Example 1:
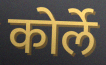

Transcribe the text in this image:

कोर्ले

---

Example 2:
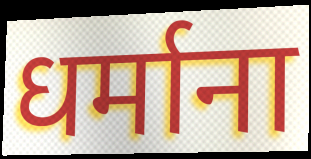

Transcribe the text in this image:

धर्माना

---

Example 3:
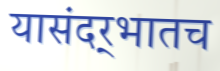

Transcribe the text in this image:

यासंदर्भातच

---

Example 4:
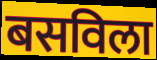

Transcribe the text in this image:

बसविला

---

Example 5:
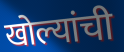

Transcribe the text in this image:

खोल्यांची